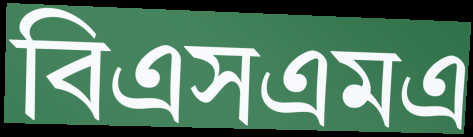
বিএসএমএ